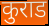
कुराड